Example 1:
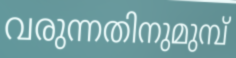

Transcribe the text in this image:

വരുന്നതിനുമുമ്പ്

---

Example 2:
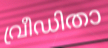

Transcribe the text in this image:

വ്രീഡിതാ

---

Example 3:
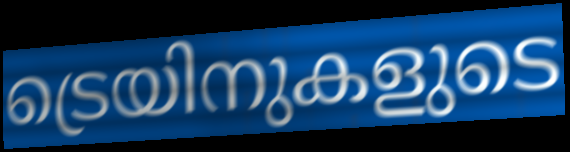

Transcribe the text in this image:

ട്രെയിനുകളുടെ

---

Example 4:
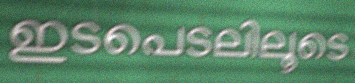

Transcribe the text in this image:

ഇടപെടലിലൂടെ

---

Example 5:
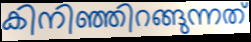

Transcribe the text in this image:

കിനിഞ്ഞിറങ്ങുന്നത്